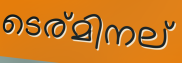
ടെര്മിനല്